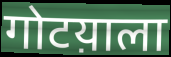
गोटय़ाला